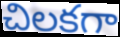
చిలకగా